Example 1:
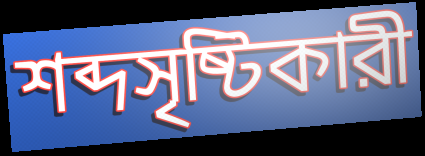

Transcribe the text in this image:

শব্দসৃষ্টিকারী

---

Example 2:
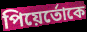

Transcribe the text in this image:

পিয়ের্তোকে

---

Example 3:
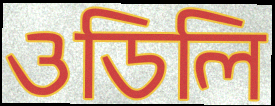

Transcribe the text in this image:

ওডিলি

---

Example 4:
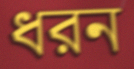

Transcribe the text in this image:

ধরন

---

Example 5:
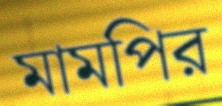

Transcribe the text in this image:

মামপির